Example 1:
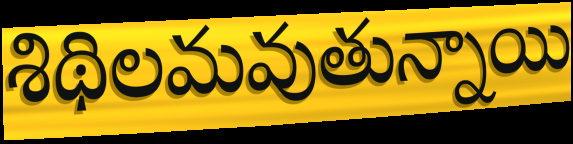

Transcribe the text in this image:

శిథిలమవుతున్నాయి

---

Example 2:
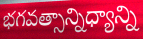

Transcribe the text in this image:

భగవత్సాన్నిధ్యాన్ని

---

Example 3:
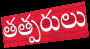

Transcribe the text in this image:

తత్పరులు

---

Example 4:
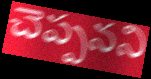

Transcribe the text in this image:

చెప్పనని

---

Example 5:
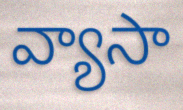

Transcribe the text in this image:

వ్యాసా